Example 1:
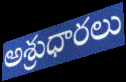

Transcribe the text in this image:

అశ్రుధారలు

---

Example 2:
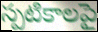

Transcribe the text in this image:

స్పటికాలపై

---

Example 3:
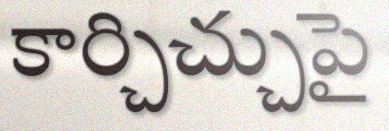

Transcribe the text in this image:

కార్చిచ్చుపై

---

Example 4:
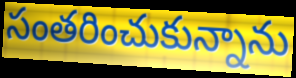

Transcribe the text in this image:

సంతరించుకున్నాను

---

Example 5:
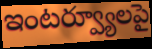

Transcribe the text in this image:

ఇంటర్వ్యూలపై